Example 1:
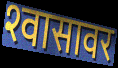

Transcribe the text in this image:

श्वासावर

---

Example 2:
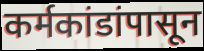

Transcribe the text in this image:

कर्मकांडांपासून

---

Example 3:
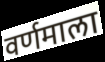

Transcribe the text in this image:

वर्णमाला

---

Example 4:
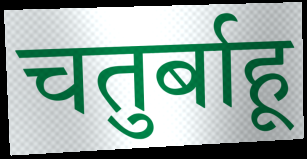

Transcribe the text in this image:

चतुर्बाहू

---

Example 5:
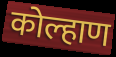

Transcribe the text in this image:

कोल्हाण